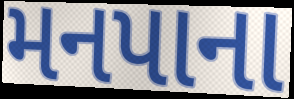
મનપાના